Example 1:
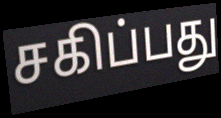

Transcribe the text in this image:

சகிப்பது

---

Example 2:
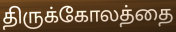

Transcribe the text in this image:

திருக்கோலத்தை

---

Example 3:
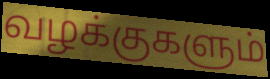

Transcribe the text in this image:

வழக்குகளும்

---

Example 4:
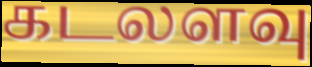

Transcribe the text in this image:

கடலளவு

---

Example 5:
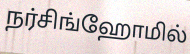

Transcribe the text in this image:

நர்சிங்ஹோமில்